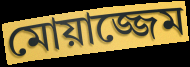
মোয়াজ্জেম